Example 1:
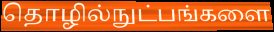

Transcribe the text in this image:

தொழில்நுட்பங்களை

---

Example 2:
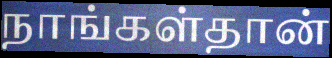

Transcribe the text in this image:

நாங்கள்தான்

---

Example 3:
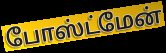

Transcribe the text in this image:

போஸ்ட்மேன்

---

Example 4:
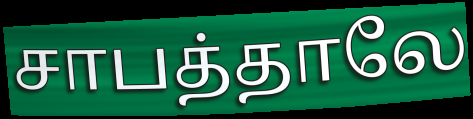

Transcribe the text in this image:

சாபத்தாலே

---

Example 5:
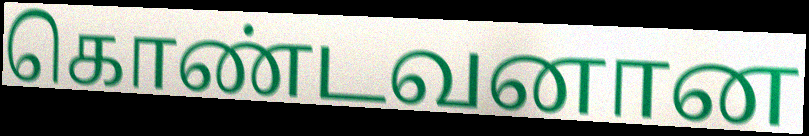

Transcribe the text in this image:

கொண்டவனான